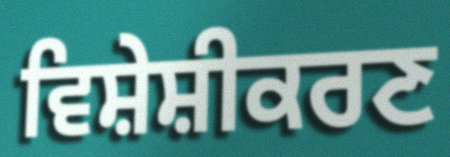
ਵਿਸ਼ੇਸ਼ੀਕਰਣ